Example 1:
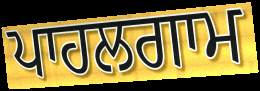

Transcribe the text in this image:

ਪਾਹਲਗਾਮ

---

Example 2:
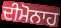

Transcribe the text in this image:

ਦੀਮੋਨਾਹ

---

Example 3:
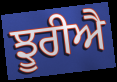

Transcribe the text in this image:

ਝੂਰੀਐ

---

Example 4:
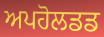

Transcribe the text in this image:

ਅਪਹੋਲਡਡ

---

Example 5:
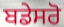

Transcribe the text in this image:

ਬਡੇਸਰੋ